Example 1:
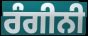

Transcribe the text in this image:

ਰੰਗੀਨੀ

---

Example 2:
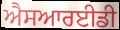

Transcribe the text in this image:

ਐਸਆਰਈਡੀ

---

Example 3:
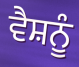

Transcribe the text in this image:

ਵੈਸ਼ਨੂੰ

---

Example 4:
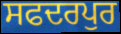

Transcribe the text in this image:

ਸਫਦਰਪੁਰ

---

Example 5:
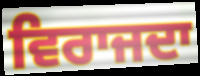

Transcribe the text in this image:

ਵਿਰਾਜਦਾ